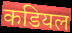
कडियल